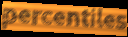
percentiles